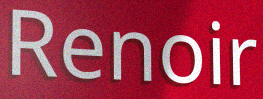
Renoir